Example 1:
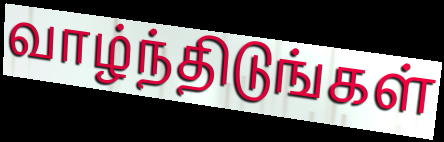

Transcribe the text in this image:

வாழ்ந்திடுங்கள்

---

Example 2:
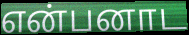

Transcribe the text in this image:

என்பனாட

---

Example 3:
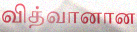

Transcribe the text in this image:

வித்வானான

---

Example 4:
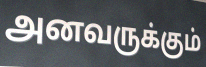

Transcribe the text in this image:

அனவருக்கும்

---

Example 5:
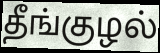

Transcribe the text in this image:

தீங்குழல்